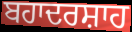
ਬਹਾਦਰਸ਼ਾਹ